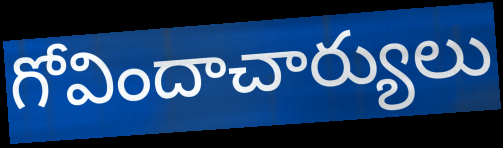
గోవిందాచార్యులు